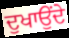
ਦੁਖਾਉਂਦੇ